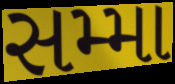
સમ્મા